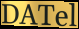
DATel